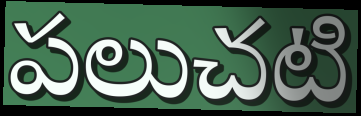
పలుచటి